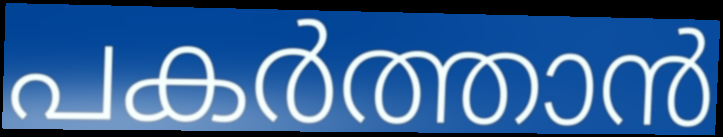
പകർത്താൻ